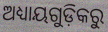
ଅଧ୍ୟାୟଗୁଡ଼ିକରୁ